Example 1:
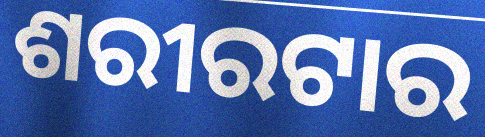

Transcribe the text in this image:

ଶରୀରଟାର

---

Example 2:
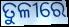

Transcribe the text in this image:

ତୁଳୀରେ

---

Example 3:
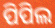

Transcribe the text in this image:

ପିପିଲ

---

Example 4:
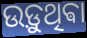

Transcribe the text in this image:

ଉଡ଼ୁଥିଵା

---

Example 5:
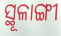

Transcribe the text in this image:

ସ୍ଥୂଳାଙ୍ଗୀ